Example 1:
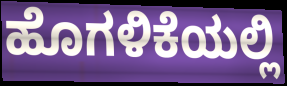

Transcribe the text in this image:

ಹೊಗಳಿಕೆಯಲ್ಲಿ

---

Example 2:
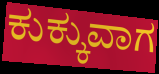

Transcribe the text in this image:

ಕುಕ್ಕುವಾಗ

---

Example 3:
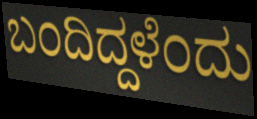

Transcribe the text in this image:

ಬಂದಿದ್ದಳೆಂದು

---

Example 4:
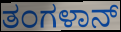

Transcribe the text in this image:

ತಂಗಳಾನ್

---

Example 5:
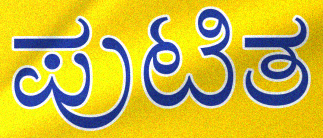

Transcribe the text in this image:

ಪುಟಿತ